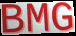
BMG